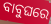
ବାବୁଘରେ